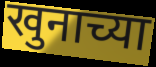
खुनाच्या